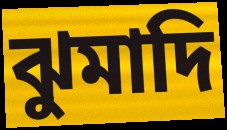
ঝুমাদি